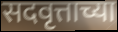
सदवृत्ताच्या